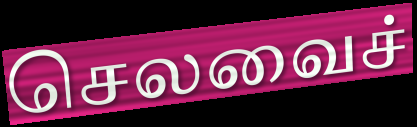
செலவைச்